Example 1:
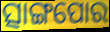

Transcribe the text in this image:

ତ୍ସାଙ୍ଗପୋର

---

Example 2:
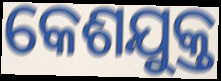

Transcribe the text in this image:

କେଶଯୁକ୍ତ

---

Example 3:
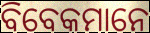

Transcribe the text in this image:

ବିବେକମାନେ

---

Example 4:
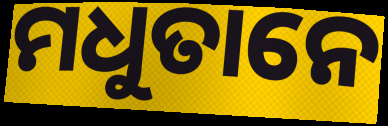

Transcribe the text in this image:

ମଧୁତାନେ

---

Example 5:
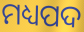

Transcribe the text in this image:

ମଧ୍ୟପଦ